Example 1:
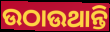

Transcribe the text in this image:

ଉଠାଉଥାନ୍ତି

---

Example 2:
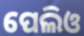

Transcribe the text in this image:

ପେଲିଓ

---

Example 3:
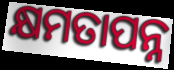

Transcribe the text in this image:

କ୍ଷମତାପନ୍ନ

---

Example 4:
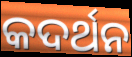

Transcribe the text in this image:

କଦର୍ଥନ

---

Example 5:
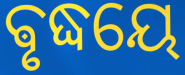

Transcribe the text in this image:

ଵୃଦ୍ଧୟେ